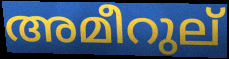
അമീറുല്